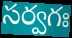
సర్వగః